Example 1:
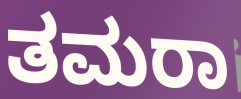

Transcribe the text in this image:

ತಮರಾ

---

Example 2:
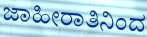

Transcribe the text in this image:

ಜಾಹೀರಾತಿನಿಂದ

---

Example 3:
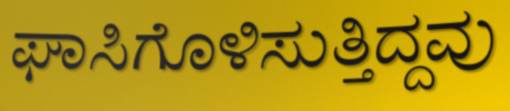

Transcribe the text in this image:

ಘಾಸಿಗೊಳಿಸುತ್ತಿದ್ದವು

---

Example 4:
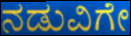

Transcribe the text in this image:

ನಡುವಿಗೇ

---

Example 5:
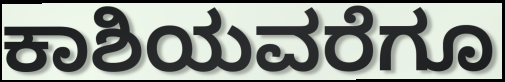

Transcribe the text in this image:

ಕಾಶಿಯವರೆಗೂ